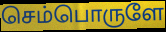
செம்பொருளே